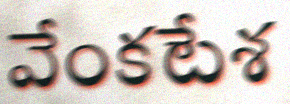
వేంకటేశ